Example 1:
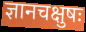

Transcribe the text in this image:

ज्ञानचक्षुषः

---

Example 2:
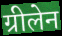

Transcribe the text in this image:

ग्रीलेन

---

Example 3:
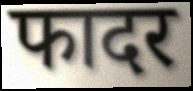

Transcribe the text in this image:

फादर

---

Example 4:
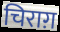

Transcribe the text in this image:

चिराग़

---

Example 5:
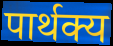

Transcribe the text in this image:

पार्थक्य